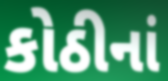
કોઠીનાં